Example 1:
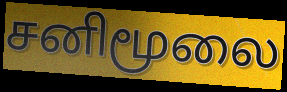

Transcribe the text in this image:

சனிமூலை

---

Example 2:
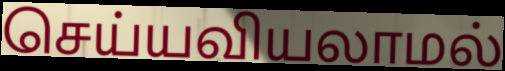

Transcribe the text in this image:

செய்யவியலாமல்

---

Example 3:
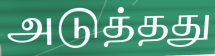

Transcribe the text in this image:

அடுத்தது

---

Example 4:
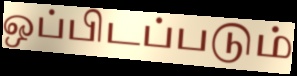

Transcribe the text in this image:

ஒப்பிடப்படும்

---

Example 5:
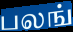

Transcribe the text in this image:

பலங்